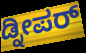
ಡ್ನೀಪರ್